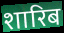
शारिब